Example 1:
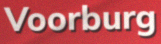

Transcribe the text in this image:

Voorburg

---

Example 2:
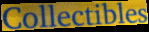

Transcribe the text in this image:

Collectibles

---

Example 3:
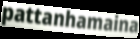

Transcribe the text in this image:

pattanhamaina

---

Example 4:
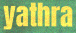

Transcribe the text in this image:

yathra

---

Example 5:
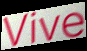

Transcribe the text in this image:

Vive